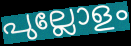
പുല്ലോളം